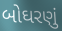
બોઘરણું